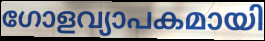
ഗോളവ്യാപകമായി